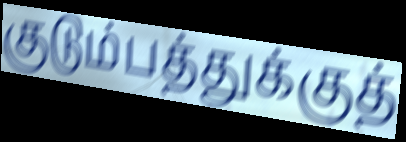
குடும்பத்துக்குத்